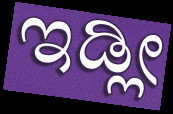
ಇಡ್ಲೀ